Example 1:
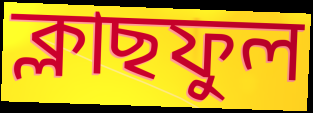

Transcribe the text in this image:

ক্লাছফুল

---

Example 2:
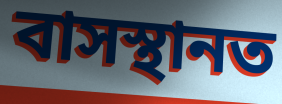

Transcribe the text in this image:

বাসস্থানত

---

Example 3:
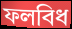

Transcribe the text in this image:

ফলবিধ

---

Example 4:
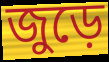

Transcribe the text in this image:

জুড়ে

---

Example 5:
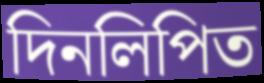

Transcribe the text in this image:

দিনলিপিত